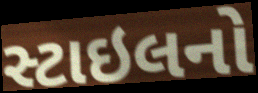
સ્ટાઇલનો